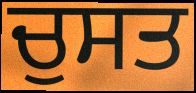
ਚੁਸਤ